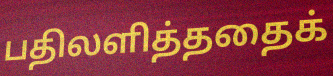
பதிலளித்ததைக்